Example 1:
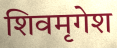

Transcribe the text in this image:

शिवमृगेश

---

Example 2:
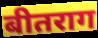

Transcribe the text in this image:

बीतराग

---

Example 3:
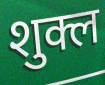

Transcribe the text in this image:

शुक्‍ल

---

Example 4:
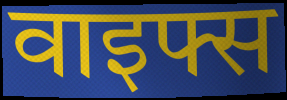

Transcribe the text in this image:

वाइफ्स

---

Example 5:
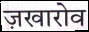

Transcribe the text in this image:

ज़खारोव